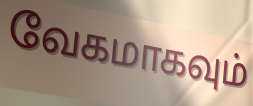
வேகமாகவும்